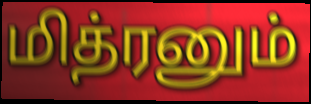
மித்ரனும்